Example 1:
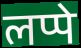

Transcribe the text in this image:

लप्पे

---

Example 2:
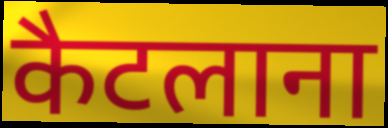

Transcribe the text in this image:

कैटलाना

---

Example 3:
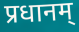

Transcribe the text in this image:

प्रधानम्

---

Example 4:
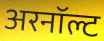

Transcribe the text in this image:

अरनॉल्ट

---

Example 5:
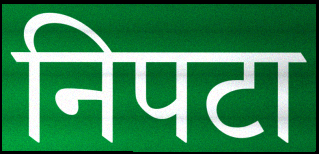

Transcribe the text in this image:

निपटा